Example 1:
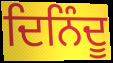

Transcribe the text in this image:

ਦਿਨਿੰਦੂ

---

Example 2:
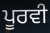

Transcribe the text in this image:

ਪੂਰਵੀ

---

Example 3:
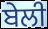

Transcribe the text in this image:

ਬੇਲੀ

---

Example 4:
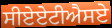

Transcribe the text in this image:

ਸੀਏਏਟੀਐਸਏ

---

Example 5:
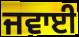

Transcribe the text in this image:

ਜਵਾਈ